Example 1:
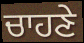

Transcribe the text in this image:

ਚਾਹਣੇ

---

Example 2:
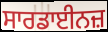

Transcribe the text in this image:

ਸਾਰਡਾਈਨਜ਼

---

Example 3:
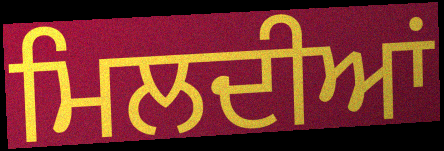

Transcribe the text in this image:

ਮਿਲਦੀਆਂ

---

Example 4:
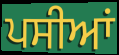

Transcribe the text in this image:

ਪਸੀਆਂ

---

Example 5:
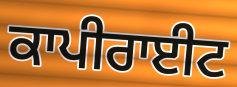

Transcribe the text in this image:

ਕਾਪੀਰਾਈਟ